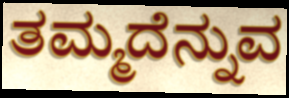
ತಮ್ಮದೆನ್ನುವ